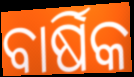
ବାର୍ଷିକ